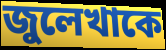
জুলেখাকে